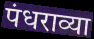
पंधराव्या